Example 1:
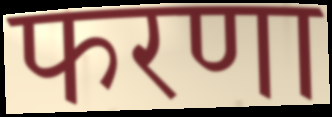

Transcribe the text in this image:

फरणा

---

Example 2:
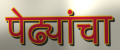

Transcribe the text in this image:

पेढ्यांचा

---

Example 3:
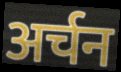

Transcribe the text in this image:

अर्चन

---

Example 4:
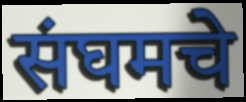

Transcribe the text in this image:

संघमचे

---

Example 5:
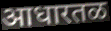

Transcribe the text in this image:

आधारतळ